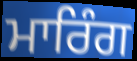
ਮਾਰਿੰਗ